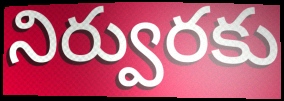
నిర్వురకు